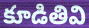
కూడితివి